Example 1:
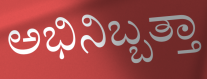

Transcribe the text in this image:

ಅಭಿನಿಬ್ಬತ್ತಾ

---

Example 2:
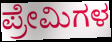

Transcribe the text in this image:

ಪ್ರೇಮಿಗಳ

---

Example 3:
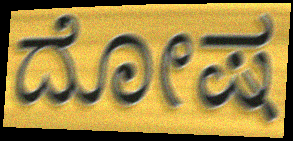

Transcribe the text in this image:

ದೋಷ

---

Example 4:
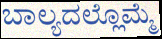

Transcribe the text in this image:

ಬಾಲ್ಯದಲ್ಲೊಮ್ಮೆ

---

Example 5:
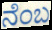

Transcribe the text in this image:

ನೆಂಬ